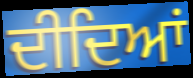
ਦੀਦਿਆਂ